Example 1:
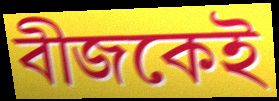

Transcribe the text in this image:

বীজকেই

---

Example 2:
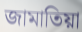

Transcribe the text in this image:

জামাতিয়া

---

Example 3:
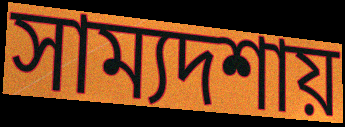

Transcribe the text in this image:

সাম্যদশায়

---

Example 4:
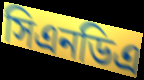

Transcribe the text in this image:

সিএনডিএ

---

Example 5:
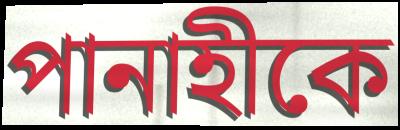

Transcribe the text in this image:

পানাহীকে